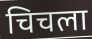
चिचला